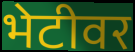
भेटीवर